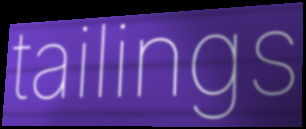
tailings